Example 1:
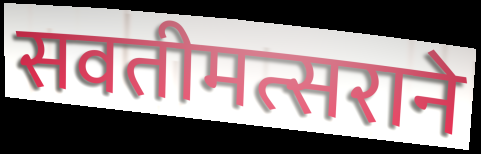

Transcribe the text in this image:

सवतीमत्सराने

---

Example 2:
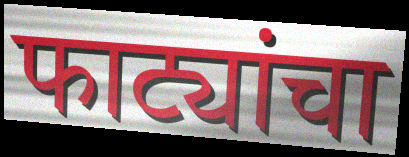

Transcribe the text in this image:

फाट्यांचा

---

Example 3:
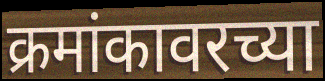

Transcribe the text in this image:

क्रमांकावरच्या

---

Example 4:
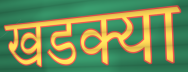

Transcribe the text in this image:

खडक्या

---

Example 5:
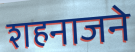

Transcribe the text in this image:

शहनाजने